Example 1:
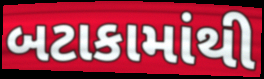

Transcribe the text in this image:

બટાકામાંથી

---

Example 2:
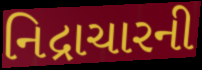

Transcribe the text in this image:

નિદ્રાચારની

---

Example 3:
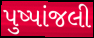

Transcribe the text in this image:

પુષ્પાંજલી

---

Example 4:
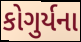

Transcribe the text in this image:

કોગુર્યના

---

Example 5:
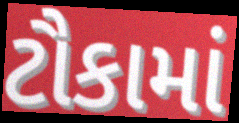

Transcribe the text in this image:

ટૌકામાં